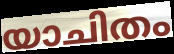
യാചിതം